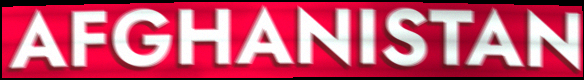
AFGHANISTAN